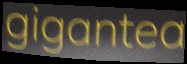
gigantea